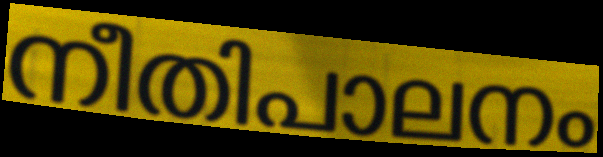
നീതിപാലനം